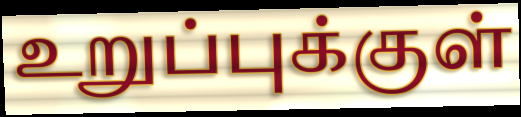
உறுப்புக்குள்